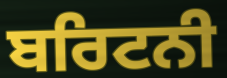
ਬਰਿਟਨੀ